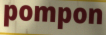
pompon